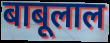
बाबूलाल